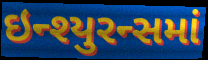
ઇન્શ્યુરન્સમાં